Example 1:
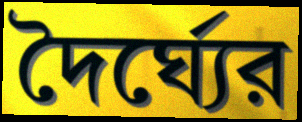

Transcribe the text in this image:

দৈর্ঘ্যের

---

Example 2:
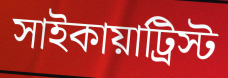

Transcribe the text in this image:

সাইকায়াট্রিস্ট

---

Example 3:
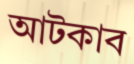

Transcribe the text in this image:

আটকাব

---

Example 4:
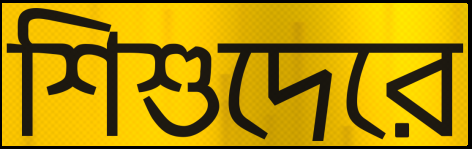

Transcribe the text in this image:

শিশুদেরে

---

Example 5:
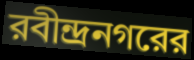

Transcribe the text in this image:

রবীন্দ্রনগরের